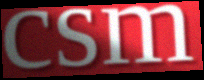
csm